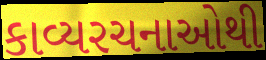
કાવ્યરચનાઓથી